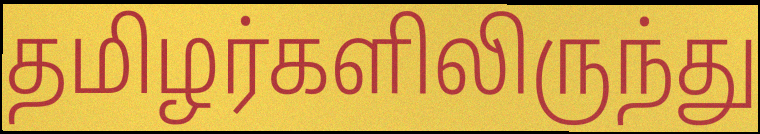
தமிழர்களிலிருந்து